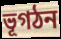
ভূগঠন